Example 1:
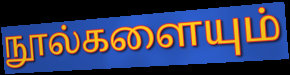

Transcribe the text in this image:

நூல்களையும்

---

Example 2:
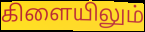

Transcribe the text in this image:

கிளையிலும்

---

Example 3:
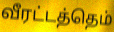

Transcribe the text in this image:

வீரட்டத்தெம்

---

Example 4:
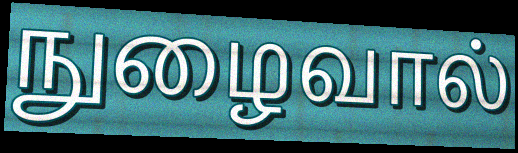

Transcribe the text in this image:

நுழைவால்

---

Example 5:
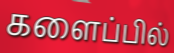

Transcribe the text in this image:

களைப்பில்